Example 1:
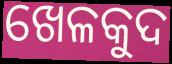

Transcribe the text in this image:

ଖେଳକୁଦ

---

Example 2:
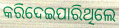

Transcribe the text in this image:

କରିଦେଇପାରିଥିଲେ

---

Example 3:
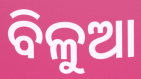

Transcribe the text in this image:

ବିଳୁଆ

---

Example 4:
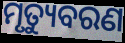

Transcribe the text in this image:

ମୃତ୍ୟୁବରଣ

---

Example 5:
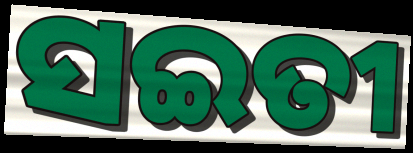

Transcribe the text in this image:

ସଇତୀ